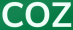
COZ